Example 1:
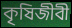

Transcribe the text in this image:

কৃষিজীবী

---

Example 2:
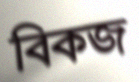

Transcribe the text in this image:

বিকজ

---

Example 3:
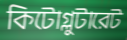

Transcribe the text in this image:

কিটোগ্লুটারেট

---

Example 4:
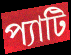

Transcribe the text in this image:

প্যাটি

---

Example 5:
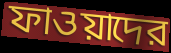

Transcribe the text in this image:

ফাওয়াদের